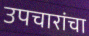
उपचारांचा